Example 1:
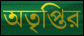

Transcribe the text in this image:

অতৃপ্তির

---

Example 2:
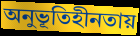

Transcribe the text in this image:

অনুভূতিহীনতায়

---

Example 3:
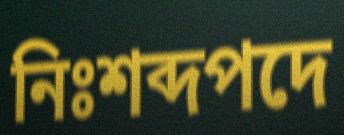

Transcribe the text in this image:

নিঃশব্দপদে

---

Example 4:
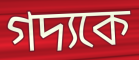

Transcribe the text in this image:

গদ্যকে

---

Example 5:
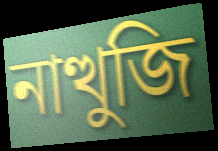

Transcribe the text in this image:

নাত্থুজি